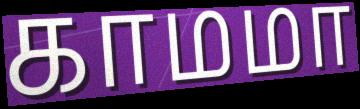
காமமா